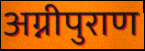
अग्नीपुराण